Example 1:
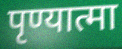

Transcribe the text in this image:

पृण्यात्मा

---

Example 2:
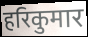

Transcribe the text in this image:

हरिकुमार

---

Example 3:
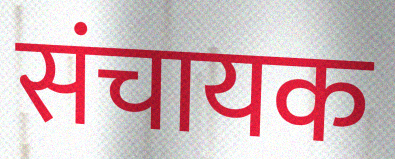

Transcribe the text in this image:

संचायक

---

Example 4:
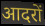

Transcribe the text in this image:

आदरों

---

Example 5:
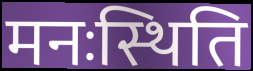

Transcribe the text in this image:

मनःस्थिति